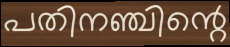
പതിനഞ്ചിന്റെ